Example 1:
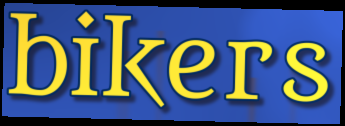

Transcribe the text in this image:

bikers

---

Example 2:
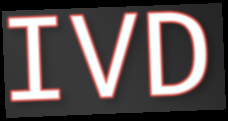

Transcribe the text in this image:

IVD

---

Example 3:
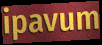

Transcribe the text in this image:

ipavum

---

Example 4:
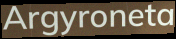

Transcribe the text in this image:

Argyroneta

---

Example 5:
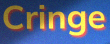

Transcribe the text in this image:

Cringe